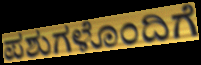
ಪಶುಗಳೊಂದಿಗೆ